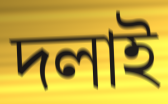
দলাই